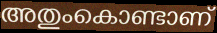
അതുംകൊണ്ടാണ്